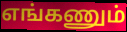
எங்கணும்